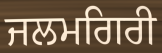
ਜਲਮਗਿਰੀ